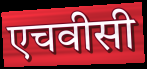
एचवीसी